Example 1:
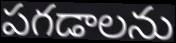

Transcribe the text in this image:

పగడాలను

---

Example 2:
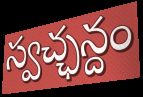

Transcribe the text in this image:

స్వచ్ఛన్దం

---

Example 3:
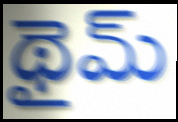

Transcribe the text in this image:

థైమ్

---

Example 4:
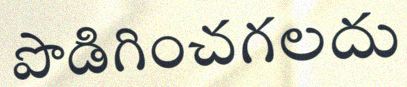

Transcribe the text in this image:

పొడిగించగలదు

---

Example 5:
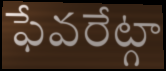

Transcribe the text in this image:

ఫేవరేట్గా